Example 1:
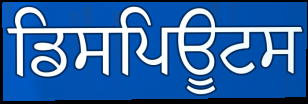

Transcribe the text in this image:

ਡਿਸਪਿਊਟਸ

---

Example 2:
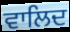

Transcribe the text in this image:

ਵਾਲਿਦ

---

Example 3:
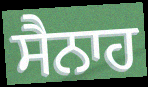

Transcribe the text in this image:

ਸੈਨਾਹ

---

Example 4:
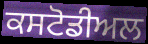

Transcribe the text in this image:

ਕਸਟੋਡੀਅਲ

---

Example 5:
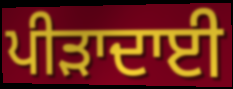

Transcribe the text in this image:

ਪੀੜਾਦਾਈ